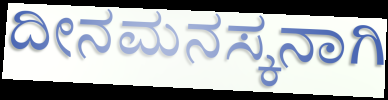
ದೀನಮನಸ್ಕನಾಗಿ